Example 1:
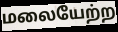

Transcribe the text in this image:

மலையேற்ற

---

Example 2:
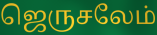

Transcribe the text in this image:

ஜெருசலேம்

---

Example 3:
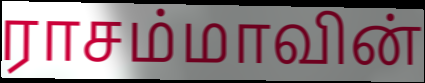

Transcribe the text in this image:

ராசம்மாவின்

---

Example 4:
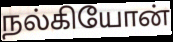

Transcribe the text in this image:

நல்கியோன்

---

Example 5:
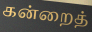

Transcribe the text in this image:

கன்றைத்